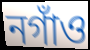
নগাঁও